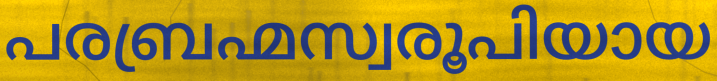
പരബ്രഹ്മസ്വരൂപിയായ